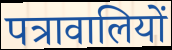
पत्रावालियों